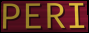
PERI